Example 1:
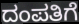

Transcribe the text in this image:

ದಂಪತಿಗೆ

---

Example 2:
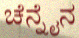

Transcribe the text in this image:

ಚೆನ್ನೈನ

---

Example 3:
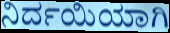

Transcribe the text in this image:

ನಿರ್ದಯಿಯಾಗಿ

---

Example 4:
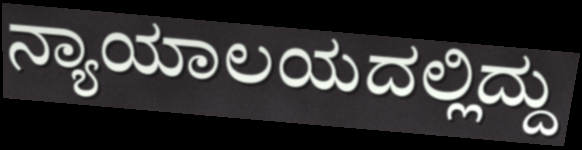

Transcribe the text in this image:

ನ್ಯಾಯಾಲಯದಲ್ಲಿದ್ದು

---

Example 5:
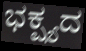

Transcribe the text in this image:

ಭಕ್ಷ್ಯದ